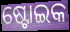
ଷ୍ଟୋଇକ